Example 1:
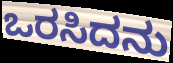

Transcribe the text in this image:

ಒರಸಿದನು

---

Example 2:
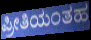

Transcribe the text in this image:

ಪ್ರೀತಿಯಂತಹ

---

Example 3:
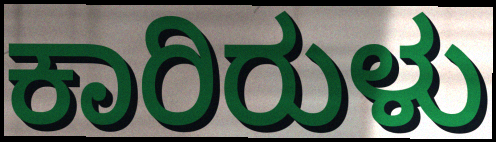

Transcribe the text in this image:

ಕಾರಿರುಳು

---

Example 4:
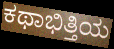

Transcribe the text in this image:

ಕಥಾಭಿತ್ತಿಯ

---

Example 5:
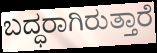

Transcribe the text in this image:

ಬದ್ಧರಾಗಿರುತ್ತಾರೆ